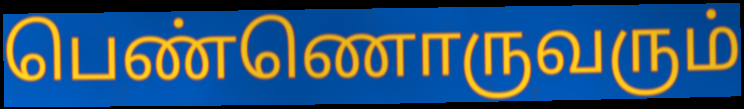
பெண்ணொருவரும்